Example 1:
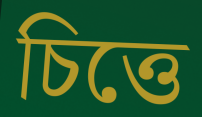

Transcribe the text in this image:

চিত্তে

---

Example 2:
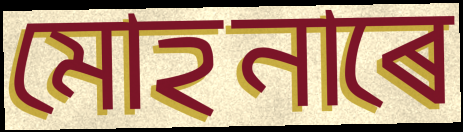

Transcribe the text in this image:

মোহনাৰে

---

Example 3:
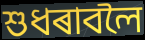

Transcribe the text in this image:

শুধৰাবলৈ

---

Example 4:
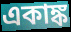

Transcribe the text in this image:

একাঙ্ক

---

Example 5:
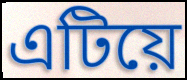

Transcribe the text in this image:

এটিয়ে